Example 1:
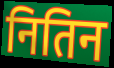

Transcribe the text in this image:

नितिन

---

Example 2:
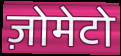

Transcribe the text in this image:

ज़ोमेटो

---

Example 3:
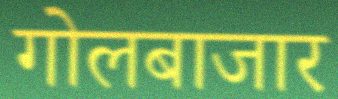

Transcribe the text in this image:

गोलबाजार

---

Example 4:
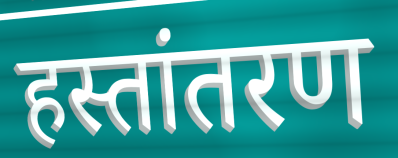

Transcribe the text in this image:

हस्तांतरण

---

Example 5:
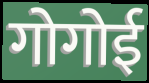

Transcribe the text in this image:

गोगोई